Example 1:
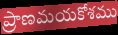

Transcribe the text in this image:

ప్రాణమయకోశము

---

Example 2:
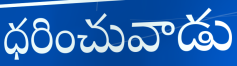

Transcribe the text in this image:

ధరించువాడు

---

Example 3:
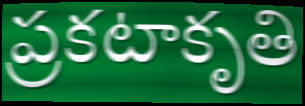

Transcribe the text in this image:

ప్రకటాకృతి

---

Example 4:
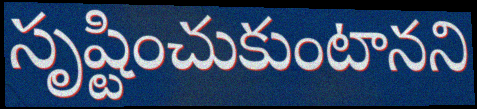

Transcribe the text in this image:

సృష్టించుకుంటానని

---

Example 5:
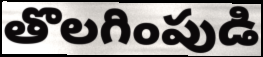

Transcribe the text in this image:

తొలగింపుడి